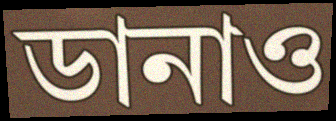
ডানাও